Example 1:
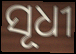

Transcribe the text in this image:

ସୂଧୀ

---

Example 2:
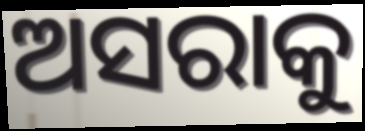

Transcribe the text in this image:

ଅସରାକୁ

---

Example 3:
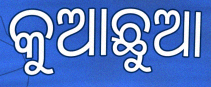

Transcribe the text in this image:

କୁଆଛୁଆ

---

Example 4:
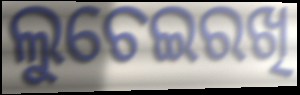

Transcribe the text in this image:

ଲୁଚେଇରଖି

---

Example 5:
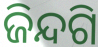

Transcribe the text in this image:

ଜିନ୍ଦଗି